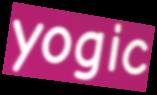
yogic